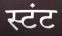
स्टंट